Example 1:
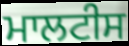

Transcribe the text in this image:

ਮਾਲਟੀਸ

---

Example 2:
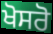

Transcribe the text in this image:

ਖੋਸਰੋ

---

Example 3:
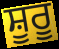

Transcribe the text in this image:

ਸ਼ੂਰੂ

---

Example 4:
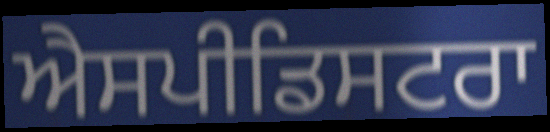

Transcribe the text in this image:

ਐਸਪੀਡਿਸਟਰਾ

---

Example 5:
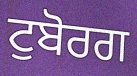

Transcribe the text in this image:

ਟੁਬੋਰਗ